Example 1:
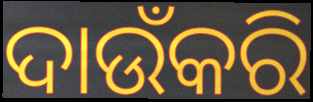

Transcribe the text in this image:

ଦାଉଁକରି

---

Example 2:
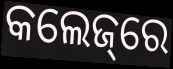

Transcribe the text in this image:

କଲେଜ୍‌ରେ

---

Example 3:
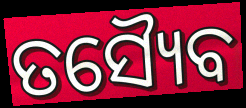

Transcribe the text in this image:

ତସ୍ୟୈବ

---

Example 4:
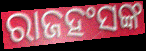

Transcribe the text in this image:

ରାଜହଂସଙ୍କ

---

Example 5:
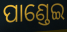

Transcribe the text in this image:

ପାଣ୍ଡେଇ